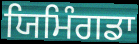
ਯਿਮਿੰਗਡਾ